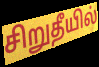
சிறுதீயில்